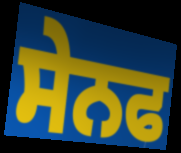
ਸੇਨਫ